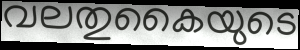
വലതുകൈയുടെ